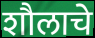
शौलाचे